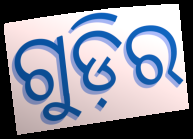
ଗୁଡ଼ିର